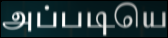
அப்படியெ